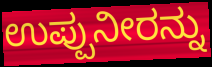
ಉಪ್ಪುನೀರನ್ನು